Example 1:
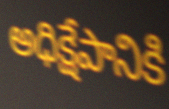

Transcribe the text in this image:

అధిక్షేపానికి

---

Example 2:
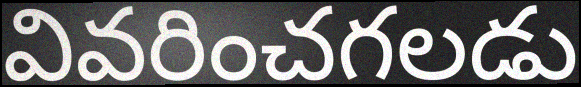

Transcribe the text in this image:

వివరించగలడు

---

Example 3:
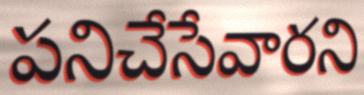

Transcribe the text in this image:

పనిచేసేవారని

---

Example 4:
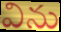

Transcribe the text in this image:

విను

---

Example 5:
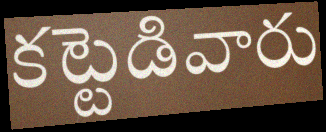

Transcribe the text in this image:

కట్టెడివారు